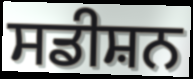
ਸਡੀਸ਼ਨ